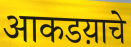
आकडय़ाचे